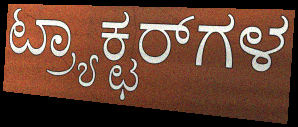
ಟ್ರ್ಯಾಕ್ಟರ್‌ಗಳ